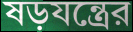
ষড়যন্ত্রের